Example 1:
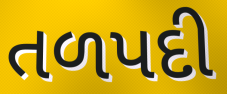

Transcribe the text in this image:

તળપદી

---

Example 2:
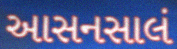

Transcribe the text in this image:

આસનસાલં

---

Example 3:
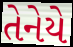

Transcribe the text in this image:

તેનેયે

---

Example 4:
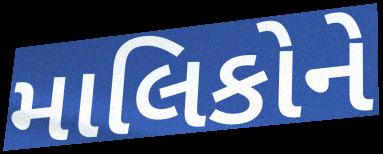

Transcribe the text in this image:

માલિકોને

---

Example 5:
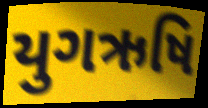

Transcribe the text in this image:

યુગઋષિ